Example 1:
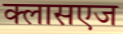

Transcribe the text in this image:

क्लासएज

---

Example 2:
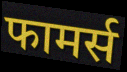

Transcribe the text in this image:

फामर्स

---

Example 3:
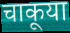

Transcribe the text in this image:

चाकूया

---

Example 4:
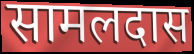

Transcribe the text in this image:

सामलदास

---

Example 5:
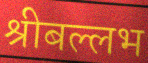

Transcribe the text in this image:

श्रीबल्लभ